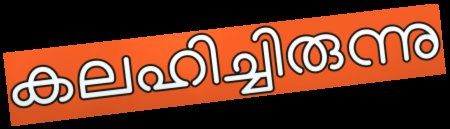
കലഹിച്ചിരുന്നു